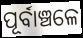
ପୂର୍ବାଞ୍ଚଳେ